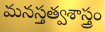
మనస్తత్వశాస్త్రం